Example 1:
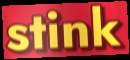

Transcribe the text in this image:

stink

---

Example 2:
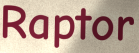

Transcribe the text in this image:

Raptor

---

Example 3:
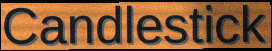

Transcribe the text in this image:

Candlestick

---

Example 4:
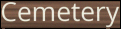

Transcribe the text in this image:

Cemetery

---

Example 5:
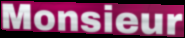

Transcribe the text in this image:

Monsieur